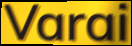
Varai